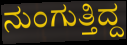
ನುಂಗುತ್ತಿದ್ದ